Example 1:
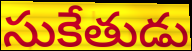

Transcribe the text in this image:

సుకేతుడు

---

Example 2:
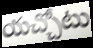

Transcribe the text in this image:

యచ్చోటు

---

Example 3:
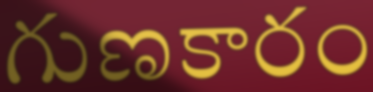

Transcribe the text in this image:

గుణకారం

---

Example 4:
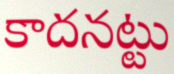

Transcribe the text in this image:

కాదనట్టు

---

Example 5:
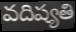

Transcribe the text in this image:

వదిష్యతి